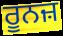
ਰੂਨਜ਼